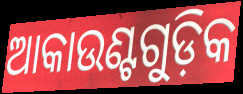
ଆକାଉଣ୍ଟଗୁଡ଼ିକ